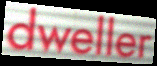
dweller